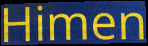
Himen